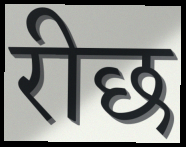
रीछ